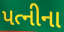
પત્નીના